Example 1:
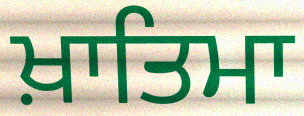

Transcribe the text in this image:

ਖ਼ਾਤਿਮਾ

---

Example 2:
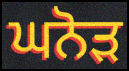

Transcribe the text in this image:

ਘਨੋੜ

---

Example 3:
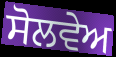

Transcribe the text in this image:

ਸੋਲਵੇਅ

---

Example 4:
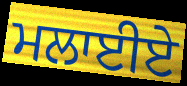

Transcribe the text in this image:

ਮਲਾਈਏ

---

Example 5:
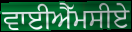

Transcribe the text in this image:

ਵਾਈਐੱਮਸੀਏ